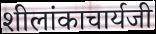
शीलांकाचार्यजी